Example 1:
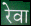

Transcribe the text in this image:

रेवा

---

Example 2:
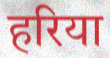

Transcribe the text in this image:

हरिया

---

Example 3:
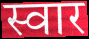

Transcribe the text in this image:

स्वार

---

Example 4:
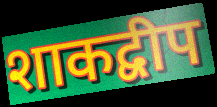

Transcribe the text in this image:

शाकद्वीप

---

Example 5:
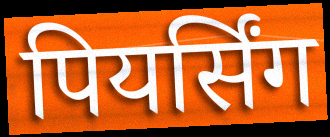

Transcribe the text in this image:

पियर्सिंग